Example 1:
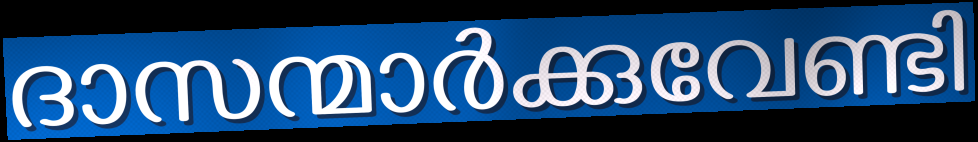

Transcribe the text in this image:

ദാസന്മാർക്കുവേണ്ടി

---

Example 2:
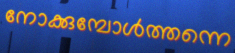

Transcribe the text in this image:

നോക്കുമ്പോൾത്തന്നെ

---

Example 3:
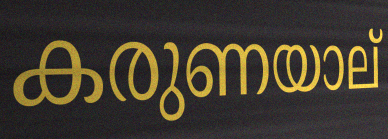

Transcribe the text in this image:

കരുണയാല്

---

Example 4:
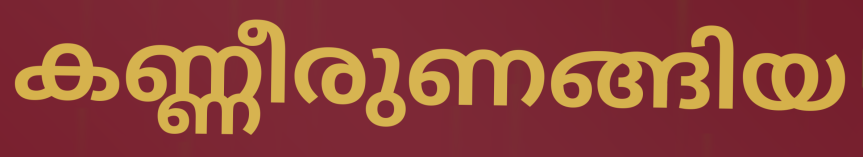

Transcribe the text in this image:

കണ്ണീരുണങ്ങിയ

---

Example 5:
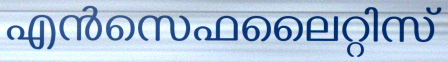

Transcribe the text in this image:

എൻസെഫലൈറ്റിസ്